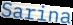
Sarina